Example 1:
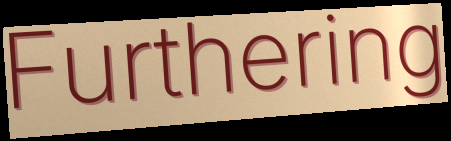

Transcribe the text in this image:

Furthering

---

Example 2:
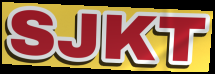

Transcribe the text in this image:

SJKT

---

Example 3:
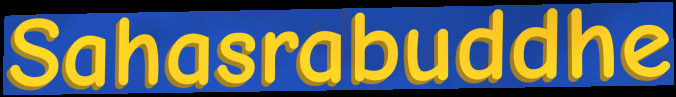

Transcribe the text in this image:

Sahasrabuddhe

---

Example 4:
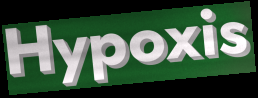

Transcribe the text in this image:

Hypoxis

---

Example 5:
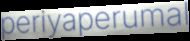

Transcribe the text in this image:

periyaperumal